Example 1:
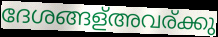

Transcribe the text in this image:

ദേശങ്ങള്അവര്ക്കു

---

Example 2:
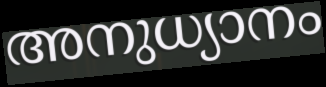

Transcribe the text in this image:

അനുധ്യാനം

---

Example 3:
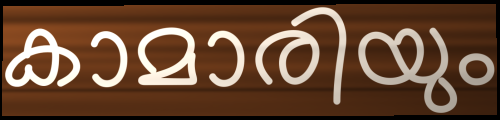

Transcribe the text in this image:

കാമാരിയും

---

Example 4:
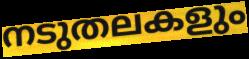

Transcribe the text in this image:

നടുതലകളും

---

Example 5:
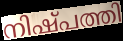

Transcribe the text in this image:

നിഷ്പത്തി